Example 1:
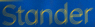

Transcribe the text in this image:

Stander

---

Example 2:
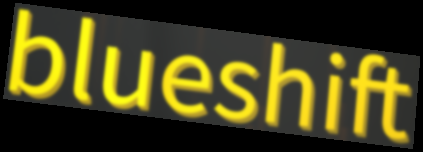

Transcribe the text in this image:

blueshift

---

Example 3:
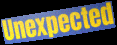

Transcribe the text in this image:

Unexpected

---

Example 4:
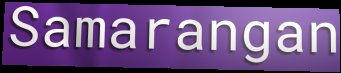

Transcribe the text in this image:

Samarangan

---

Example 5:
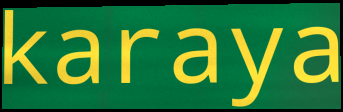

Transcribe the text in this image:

karaya